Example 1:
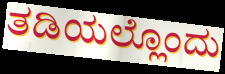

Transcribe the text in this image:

ತಡಿಯಲ್ಲೊಂದು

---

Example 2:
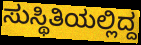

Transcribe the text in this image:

ಸುಸ್ಥಿತಿಯಲ್ಲಿದ್ದ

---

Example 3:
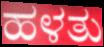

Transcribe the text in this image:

ಹಳತು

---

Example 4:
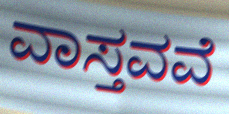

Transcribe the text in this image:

ವಾಸ್ತವವೆ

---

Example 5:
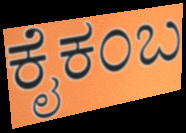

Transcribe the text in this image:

ಕೈಕಂಬ